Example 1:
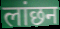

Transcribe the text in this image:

लांछन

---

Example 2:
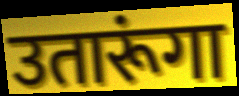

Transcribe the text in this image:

उतारूंगा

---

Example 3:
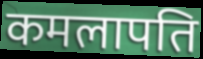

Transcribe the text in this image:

कमलापति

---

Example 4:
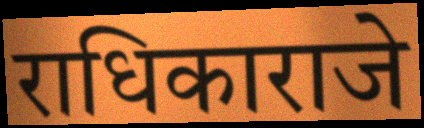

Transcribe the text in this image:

राधिकाराजे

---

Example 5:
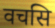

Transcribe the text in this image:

वचसि